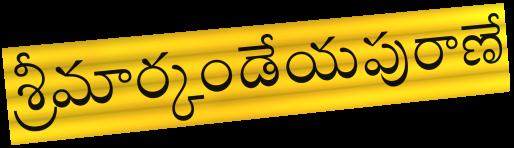
శ్రీమార్కండేయపురాణే